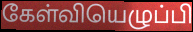
கேள்வியெழுப்பி